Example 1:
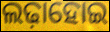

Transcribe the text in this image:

ଲଢ଼ାହୋଇ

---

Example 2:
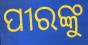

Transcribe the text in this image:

ପୀରଙ୍କୁ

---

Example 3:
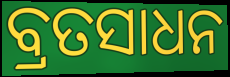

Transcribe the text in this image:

ବ୍ରତସାଧନ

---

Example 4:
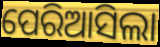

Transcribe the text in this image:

ପେରିଆସିଲା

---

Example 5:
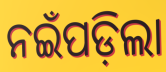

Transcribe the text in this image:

ନଇଁପଡ଼ିଲା